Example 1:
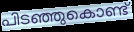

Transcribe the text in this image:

പിടഞ്ഞുകൊണ്ട്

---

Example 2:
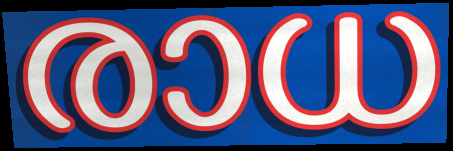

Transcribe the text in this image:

രാധ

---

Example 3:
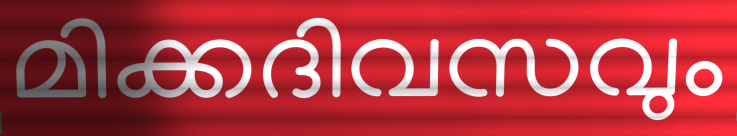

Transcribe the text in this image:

മിക്കദിവസവും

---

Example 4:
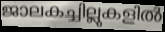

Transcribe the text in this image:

ജാലകച്ചില്ലുകളിൽ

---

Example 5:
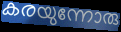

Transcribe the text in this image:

കരയുന്നോരു